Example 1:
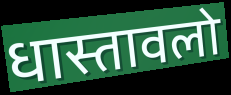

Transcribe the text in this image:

धास्तावलो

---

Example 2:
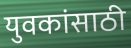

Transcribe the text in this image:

युवकांसाठी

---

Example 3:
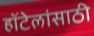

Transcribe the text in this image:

हॉटेलांसाठी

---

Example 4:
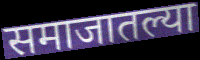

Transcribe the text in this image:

समाजातल्‍या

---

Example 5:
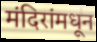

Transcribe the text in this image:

मंदिरांमधून